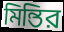
মিন্তির